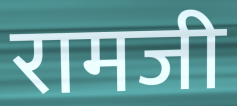
रामजी